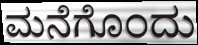
ಮನೆಗೊಂದು